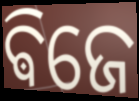
ଵିଜେ